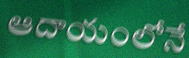
ఆదాయంలోనే